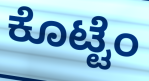
ಕೊಟ್ಟೆಂ